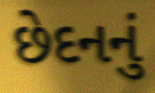
છેદનનું